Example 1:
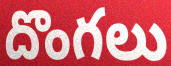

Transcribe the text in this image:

దొంగలు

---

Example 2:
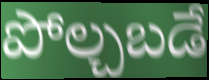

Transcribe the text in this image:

పోల్చబడే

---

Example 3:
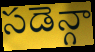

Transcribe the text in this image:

సడెన్గా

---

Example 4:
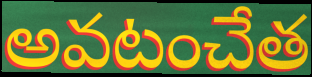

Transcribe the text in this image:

అవటంచేత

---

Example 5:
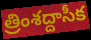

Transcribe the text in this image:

త్రింశద్దాసీక